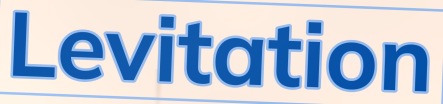
Levitation